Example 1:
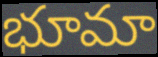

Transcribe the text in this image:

భూమా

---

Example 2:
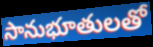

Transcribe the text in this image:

సానుభూతులతో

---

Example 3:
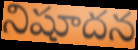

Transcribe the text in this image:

నిషూదన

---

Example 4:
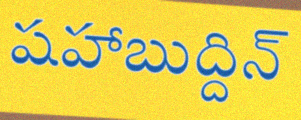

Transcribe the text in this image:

షహాబుద్దిన్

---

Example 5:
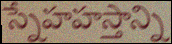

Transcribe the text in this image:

స్నేహహస్తాన్ని